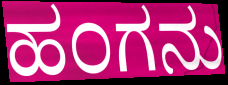
ಹಂಗನು